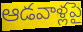
ఆడవాళ్లపై